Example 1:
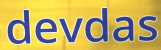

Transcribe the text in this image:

devdas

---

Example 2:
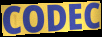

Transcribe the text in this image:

CODEC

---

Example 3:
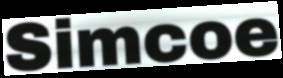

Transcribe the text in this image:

Simcoe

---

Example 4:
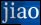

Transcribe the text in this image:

jiao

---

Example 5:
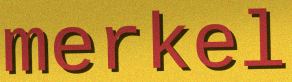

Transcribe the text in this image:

merkel